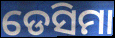
ଡେସିମା